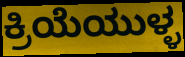
ಕ್ರಿಯೆಯುಳ್ಳ